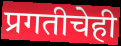
प्रगतीचेही